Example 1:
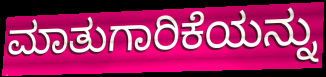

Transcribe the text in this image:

ಮಾತುಗಾರಿಕೆಯನ್ನು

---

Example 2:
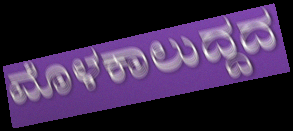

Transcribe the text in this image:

ಮೊಳಕಾಲುದ್ದದ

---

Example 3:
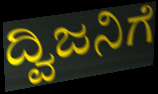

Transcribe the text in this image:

ದ್ವಿಜನಿಗೆ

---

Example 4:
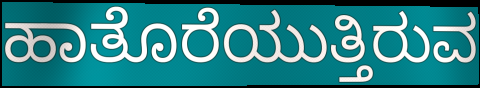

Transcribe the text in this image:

ಹಾತೊರೆಯುತ್ತಿರುವ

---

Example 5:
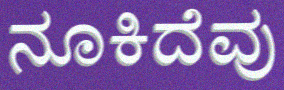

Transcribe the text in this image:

ನೂಕಿದೆವು